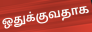
ஒதுக்குவதாக